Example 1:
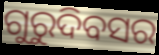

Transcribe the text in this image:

ଗୁରୁଦିବସର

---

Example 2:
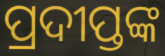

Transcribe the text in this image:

ପ୍ରଦୀପ୍ତଙ୍କ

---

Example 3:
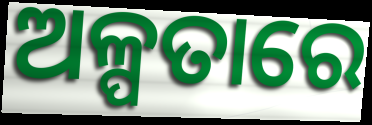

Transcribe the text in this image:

ଅଳ୍ପତାରେ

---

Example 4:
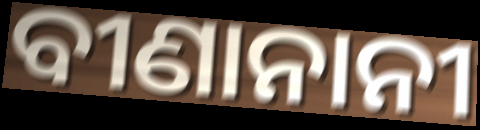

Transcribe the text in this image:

ବୀଣାନାନୀ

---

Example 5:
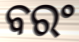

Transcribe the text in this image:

ବରଂ